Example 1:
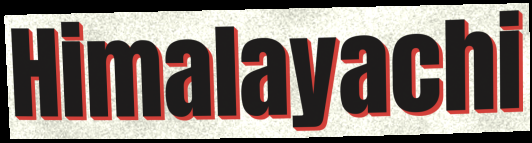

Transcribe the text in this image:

Himalayachi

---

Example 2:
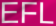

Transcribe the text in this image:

EFL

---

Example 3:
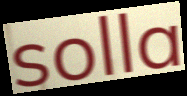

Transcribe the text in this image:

solla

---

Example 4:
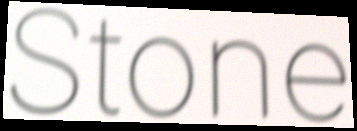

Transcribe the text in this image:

Stone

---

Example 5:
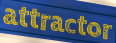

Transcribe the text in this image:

attractor